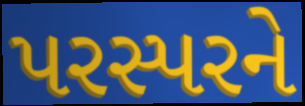
પરસ્પરને